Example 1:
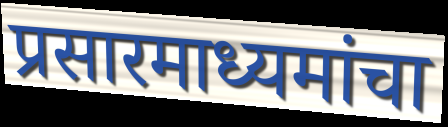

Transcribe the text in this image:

प्रसारमाध्यमांचा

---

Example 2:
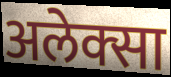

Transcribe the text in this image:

अलेक्‍सा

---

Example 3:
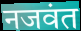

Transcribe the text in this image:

नजवंत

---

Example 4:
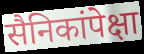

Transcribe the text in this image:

सैनिकांपेक्षा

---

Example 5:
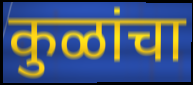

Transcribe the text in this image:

कुळांचा